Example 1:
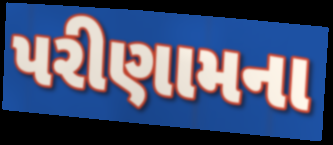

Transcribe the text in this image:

પરીણામના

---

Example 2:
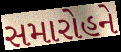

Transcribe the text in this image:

સમારોહને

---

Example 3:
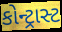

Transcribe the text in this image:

કોન્ટ્રાસ્ટ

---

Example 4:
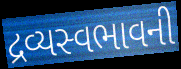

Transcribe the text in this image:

દ્રવ્યસ્વભાવની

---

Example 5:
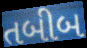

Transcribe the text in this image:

તબીબ